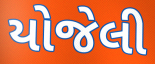
યોજેલી